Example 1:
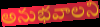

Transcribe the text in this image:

అనుభవాలని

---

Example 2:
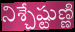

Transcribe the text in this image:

నిశ్చేష్టుణ్ణి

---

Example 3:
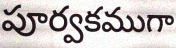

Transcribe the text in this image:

పూర్వకముగా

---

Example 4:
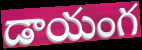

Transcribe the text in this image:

డాయంగ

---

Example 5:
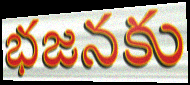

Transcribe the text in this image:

భజనకు